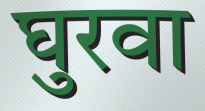
घुरवा